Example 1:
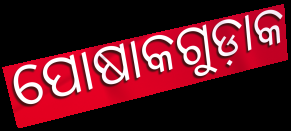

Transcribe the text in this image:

ପୋଷାକଗୁଡ଼ାକ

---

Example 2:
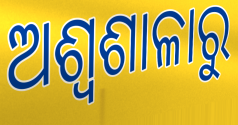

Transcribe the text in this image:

ଅଶ୍ୱଶାଳାରୁ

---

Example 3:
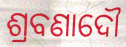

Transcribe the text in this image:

ଶ୍ରବଣାଦୌ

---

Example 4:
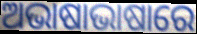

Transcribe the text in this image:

ଅଭାଷାଭାଷାରେ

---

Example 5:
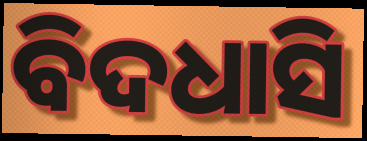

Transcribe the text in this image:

ବିଦଧାସି